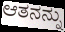
ಆತನನ್ನು